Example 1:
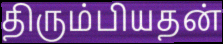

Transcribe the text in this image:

திரும்பியதன்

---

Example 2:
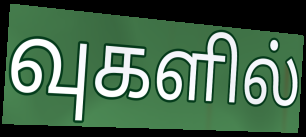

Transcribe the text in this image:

வுகளில்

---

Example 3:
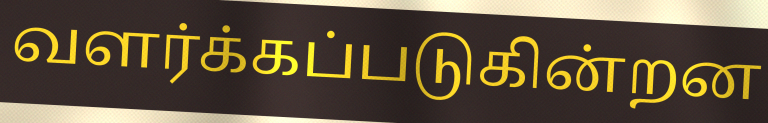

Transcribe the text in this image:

வளர்க்கப்படுகின்றன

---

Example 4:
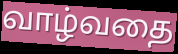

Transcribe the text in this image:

வாழ்வதை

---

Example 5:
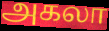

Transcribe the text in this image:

அகலா